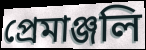
প্রেমাঞ্জলি